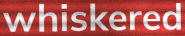
whiskered